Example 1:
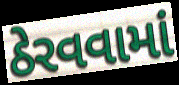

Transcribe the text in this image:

ઠેરવવામાં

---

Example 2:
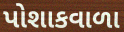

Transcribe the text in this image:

પોશાકવાળા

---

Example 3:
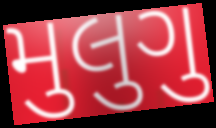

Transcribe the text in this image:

મુલુગુ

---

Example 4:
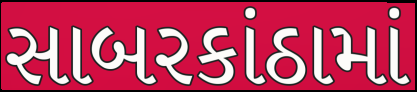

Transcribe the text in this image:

સાબરકાંઠામાં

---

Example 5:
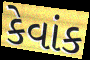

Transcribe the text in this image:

કેવાંક